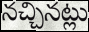
నచ్చినట్లు